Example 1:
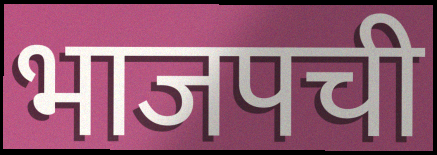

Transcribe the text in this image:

भाजपची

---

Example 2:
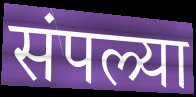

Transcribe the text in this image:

संपल्या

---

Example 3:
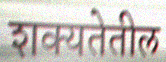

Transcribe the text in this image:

शक्यतेतील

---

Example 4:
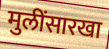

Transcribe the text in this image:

मुलींसारखा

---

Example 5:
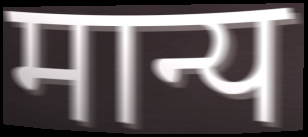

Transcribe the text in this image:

मान्य